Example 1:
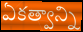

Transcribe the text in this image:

ఏకత్వాన్ని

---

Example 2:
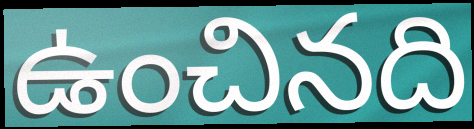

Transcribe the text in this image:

ఉంచినది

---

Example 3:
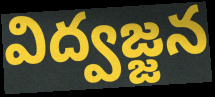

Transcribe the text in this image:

విద్వజ్జన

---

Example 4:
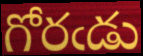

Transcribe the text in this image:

గోరఁడు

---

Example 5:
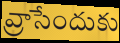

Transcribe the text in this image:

వ్రాసేందుకు